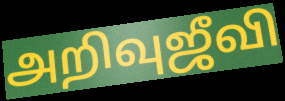
அறிவுஜீவி